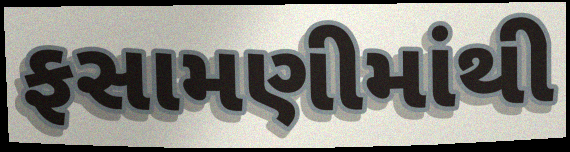
ફસામણીમાંથી